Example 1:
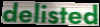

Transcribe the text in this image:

delisted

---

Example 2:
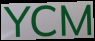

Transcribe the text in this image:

YCM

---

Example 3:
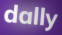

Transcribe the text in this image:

dally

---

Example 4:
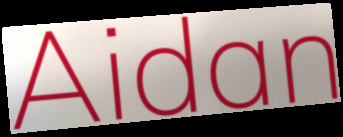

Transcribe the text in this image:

Aidan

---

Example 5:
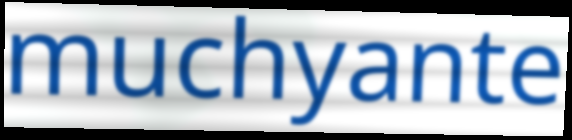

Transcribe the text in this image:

muchyante